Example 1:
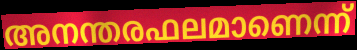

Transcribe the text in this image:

അനന്തരഫലമാണെന്ന്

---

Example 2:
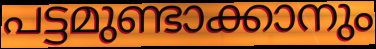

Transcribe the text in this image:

പട്ടമുണ്ടാക്കാനും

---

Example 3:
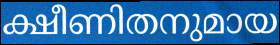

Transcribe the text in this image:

ക്ഷീണിതനുമായ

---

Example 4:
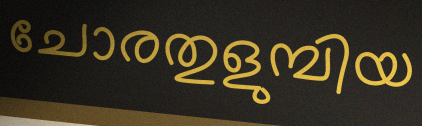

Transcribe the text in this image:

ചോരതുളുമ്പിയ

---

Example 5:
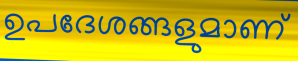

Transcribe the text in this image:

ഉപദേശങ്ങളുമാണ്